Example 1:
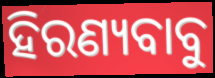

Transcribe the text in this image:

ହିରଣ୍ୟବାବୁ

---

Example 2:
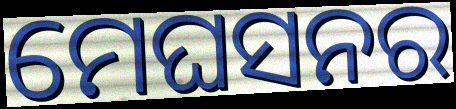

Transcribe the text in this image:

ମେଘସନର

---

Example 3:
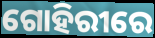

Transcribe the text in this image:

ଗୋହିରୀରେ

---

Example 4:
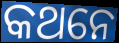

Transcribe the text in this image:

କଥନେ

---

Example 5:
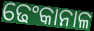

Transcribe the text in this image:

ଢେଂକାନାଳ